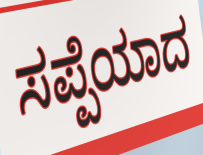
ಸಪ್ಪೆಯಾದ